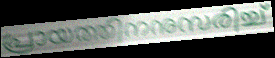
പ്രായത്തിനനുസരിച്ച്